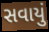
સવાયું